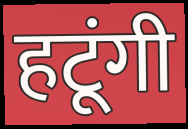
हटूंगी